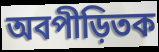
অবপীড়িতক